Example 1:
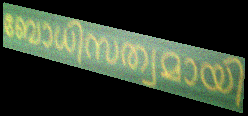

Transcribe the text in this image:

ബോധിസത്വമായി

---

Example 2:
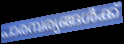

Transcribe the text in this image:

പാരമ്പര്യങ്ങൾക്ക്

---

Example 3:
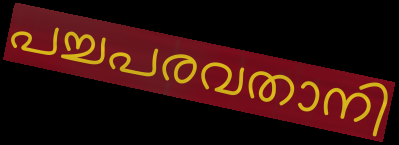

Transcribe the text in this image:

പച്ചപരവതാനി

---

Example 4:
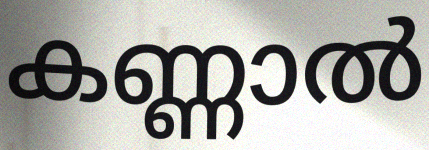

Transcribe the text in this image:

കണ്ണാൽ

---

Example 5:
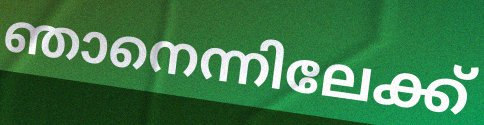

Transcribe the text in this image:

ഞാനെന്നിലേക്ക്